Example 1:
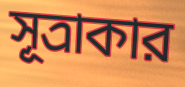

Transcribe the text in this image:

সূত্রাকার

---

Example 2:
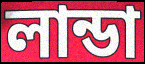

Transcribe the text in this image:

লান্ডা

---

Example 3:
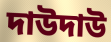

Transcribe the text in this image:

দাউদাউ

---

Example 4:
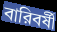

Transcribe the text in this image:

বারিবর্ষী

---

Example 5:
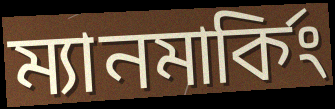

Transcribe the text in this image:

ম্যানমার্কিং